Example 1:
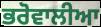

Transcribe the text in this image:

ਭਰੋਵਾਲੀਆ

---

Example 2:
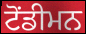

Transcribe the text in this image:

ਟੋਂਡੀਮਨ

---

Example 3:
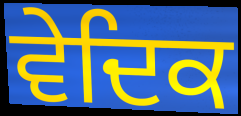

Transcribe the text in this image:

ਵੇਦਿਕ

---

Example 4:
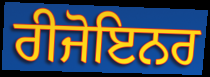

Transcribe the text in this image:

ਰੀਜੋਇਨਰ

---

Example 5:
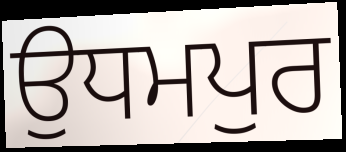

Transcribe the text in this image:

ਉਧਮਪੁਰ